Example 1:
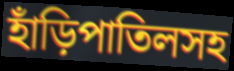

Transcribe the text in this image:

হাঁড়িপাতিলসহ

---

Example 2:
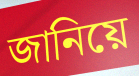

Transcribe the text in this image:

জানিয়ে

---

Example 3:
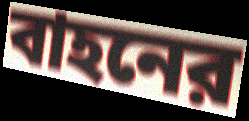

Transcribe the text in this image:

বাহনের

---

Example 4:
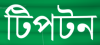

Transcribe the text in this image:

টিপটন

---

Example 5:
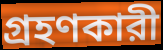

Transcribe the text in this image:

গ্রহণকারী